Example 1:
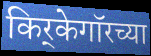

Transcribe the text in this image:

किर्केगॉरच्या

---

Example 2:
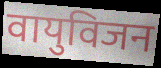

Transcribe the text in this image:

वायुविजन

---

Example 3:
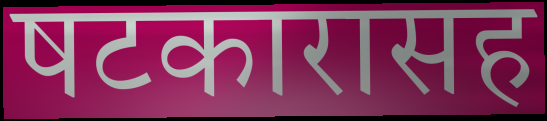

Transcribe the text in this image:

षटकारासह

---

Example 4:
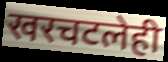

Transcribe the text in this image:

खरचटलेही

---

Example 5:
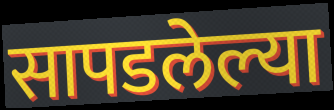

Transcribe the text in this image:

सापडलेल्या